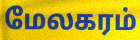
மேலகரம்